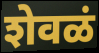
शेवळं